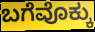
ಬಗೆವೊಕ್ಕು